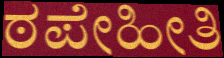
ಠಪೇಹೀತಿ